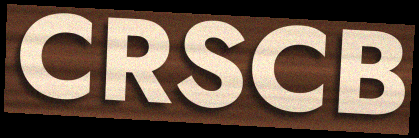
CRSCB